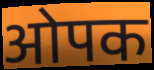
ओपक